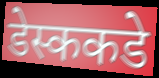
डेस्ककडे